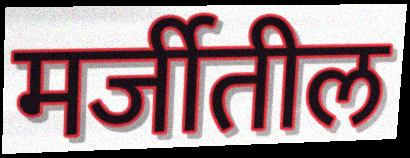
मर्जीतील